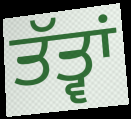
ਤੱਤ੍ਵਾਂ